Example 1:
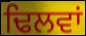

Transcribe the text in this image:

ਢਿਲਵਾਂ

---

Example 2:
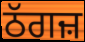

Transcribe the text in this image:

ਠੱਗਜ਼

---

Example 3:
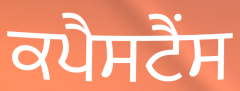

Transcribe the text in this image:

ਕਪੈਸਟੈਂਸ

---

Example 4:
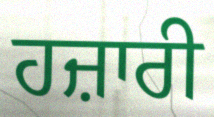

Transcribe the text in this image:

ਹਜ਼ਾਰੀ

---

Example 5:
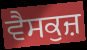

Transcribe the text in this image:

ਵੈਸਕੁਜ਼